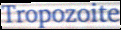
Tropozoite